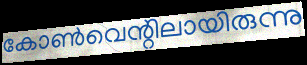
കോൺവെന്റിലായിരുന്നു